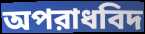
অপরাধবিদ